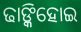
ଢାଙ୍କିହୋଇ